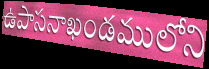
ఉపాసనాఖండములోని